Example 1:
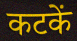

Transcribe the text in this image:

कटकें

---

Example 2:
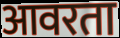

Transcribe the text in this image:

आवरता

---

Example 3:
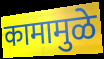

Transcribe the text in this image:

कामामुळे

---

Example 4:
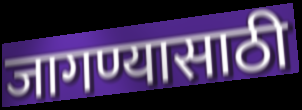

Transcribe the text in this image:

जागण्यासाठी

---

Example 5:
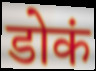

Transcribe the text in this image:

डोकं